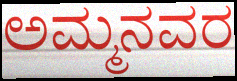
ಅಮ್ಮನವರ